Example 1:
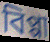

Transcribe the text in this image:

বিপ্পা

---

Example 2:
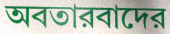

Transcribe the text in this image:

অবতারবাদের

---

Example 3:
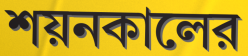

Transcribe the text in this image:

শয়নকালের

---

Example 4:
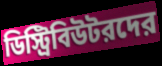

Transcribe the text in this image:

ডিস্ট্রিবিউটরদের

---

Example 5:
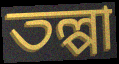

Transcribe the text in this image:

তল্পা